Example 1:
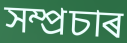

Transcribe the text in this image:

সম্প্ৰচাৰ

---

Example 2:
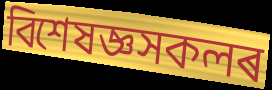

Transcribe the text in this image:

বিশেষজ্ঞসকলৰ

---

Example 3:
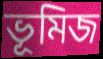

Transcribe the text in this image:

ভূমিজ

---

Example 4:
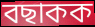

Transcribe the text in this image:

বছাকক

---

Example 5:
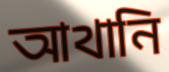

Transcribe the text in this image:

আথানি